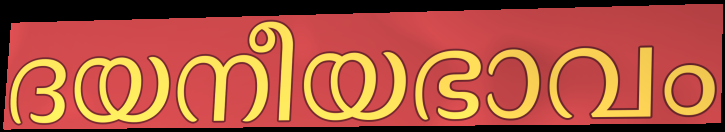
ദയനീയഭാവം